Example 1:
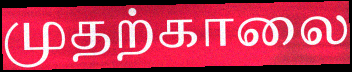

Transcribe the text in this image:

முதற்காலை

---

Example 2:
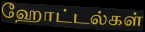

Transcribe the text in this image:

ஹோட்டல்கள்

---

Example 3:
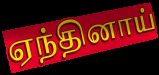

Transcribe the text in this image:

ஏந்தினாய்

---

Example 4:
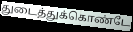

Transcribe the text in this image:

துடைத்துக்கொண்டே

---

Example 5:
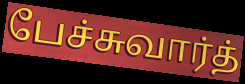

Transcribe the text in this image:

பேச்சுவார்த்